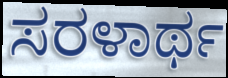
ಸರಳಾರ್ಥ